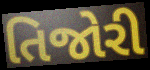
તિજોરી